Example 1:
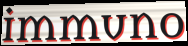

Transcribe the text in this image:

immuno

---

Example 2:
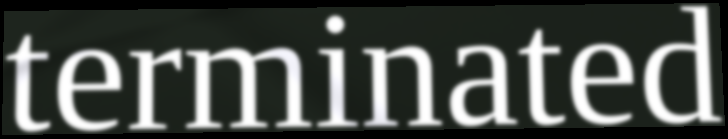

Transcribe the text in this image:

terminated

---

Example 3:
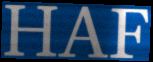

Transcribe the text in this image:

HAF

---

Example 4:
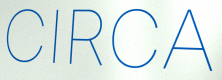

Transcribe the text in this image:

CIRCA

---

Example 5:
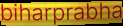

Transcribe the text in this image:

biharprabha